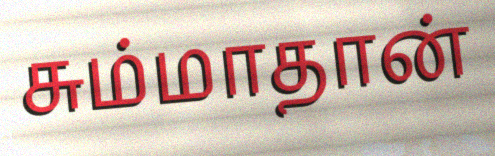
சும்மாதான்